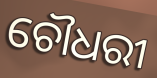
ଚୌଧରୀ